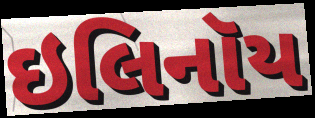
ઇલિનૉય